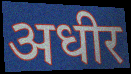
अधीर